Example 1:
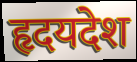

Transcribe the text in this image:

हृदयदेश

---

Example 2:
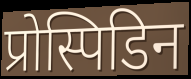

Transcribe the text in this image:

प्रोस्पिडिन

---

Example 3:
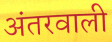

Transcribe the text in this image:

अंतरवाली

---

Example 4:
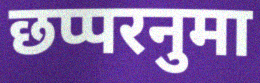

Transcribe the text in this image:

छप्परनुमा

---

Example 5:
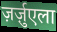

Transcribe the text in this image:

ज़र्ज़ुएला